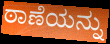
ಠಾಣೆಯನ್ನು